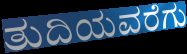
ತುದಿಯವರೆಗು